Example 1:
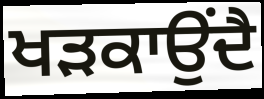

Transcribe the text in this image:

ਖੜਕਾਉਂਦੈ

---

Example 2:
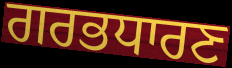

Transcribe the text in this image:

ਗਰਭਧਾਰਣ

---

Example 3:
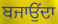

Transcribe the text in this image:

ਬਜਾਉਂਦਾ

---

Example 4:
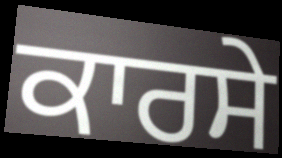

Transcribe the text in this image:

ਕਾਰਸੇ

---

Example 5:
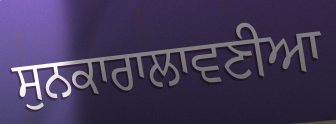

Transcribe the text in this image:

ਸੁਨਕਾਰਾਲਾਵਣੀਆ